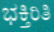
ಭಕ್ತಿರಿತಿ